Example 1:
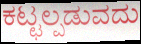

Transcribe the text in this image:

ಕಟ್ಟಲ್ಪಡುವದು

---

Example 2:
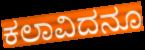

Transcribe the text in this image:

ಕಲಾವಿದನೂ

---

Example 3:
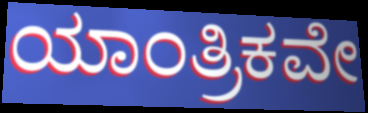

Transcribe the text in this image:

ಯಾಂತ್ರಿಕವೇ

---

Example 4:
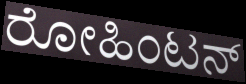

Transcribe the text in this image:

ರೋಹಿಂಟನ್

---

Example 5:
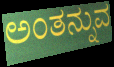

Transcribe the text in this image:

ಅಂತನ್ನುವ